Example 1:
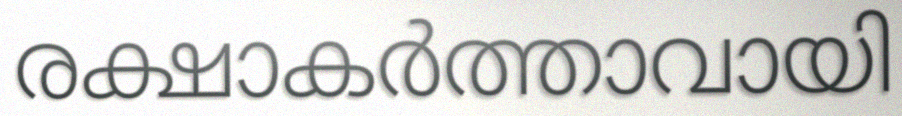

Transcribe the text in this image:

രക്ഷാകർത്താവായി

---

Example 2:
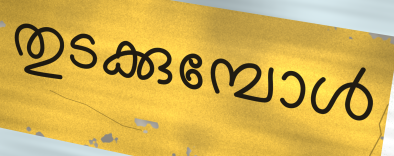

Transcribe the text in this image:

തുടക്കുമ്പോൾ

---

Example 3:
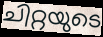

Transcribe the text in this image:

ചിറ്റയുടെ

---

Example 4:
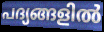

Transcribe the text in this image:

പദ്യങ്ങളിൽ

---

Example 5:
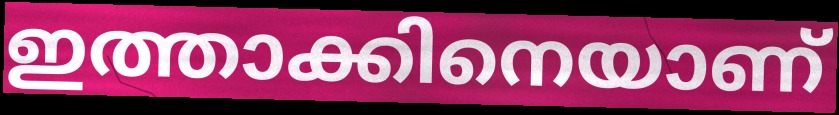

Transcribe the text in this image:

ഇത്താക്കിനെയാണ്